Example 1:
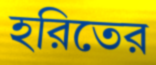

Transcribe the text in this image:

হরিতের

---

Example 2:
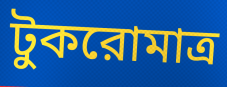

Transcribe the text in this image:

টুকরোমাত্র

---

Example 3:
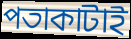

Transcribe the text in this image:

পতাকাটাই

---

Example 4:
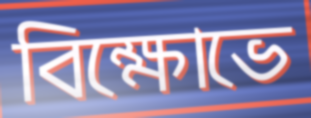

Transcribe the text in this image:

বিক্ষোভে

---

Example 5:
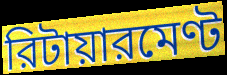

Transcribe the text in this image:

রিটায়ারমেণ্ট